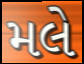
મલે